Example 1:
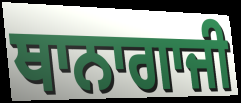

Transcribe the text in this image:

ਥਾਨਾਗਾਜੀ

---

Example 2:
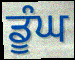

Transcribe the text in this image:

ਡੂੰਘ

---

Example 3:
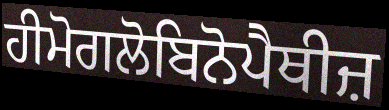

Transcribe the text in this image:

ਹੀਮੋਗਲੋਬਿਨੋਪੈਥੀਜ਼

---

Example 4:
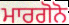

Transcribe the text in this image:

ਮਾਰਗੋਨੋ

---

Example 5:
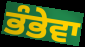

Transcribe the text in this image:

ਭੰਭੇਵਾ